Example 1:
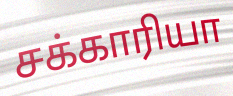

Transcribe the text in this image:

சக்காரியா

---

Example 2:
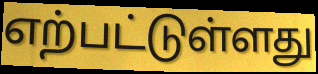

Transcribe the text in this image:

எற்பட்டுள்ளது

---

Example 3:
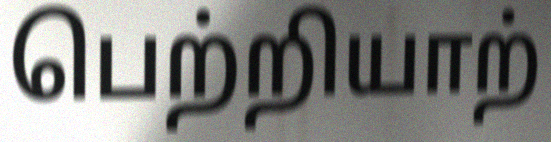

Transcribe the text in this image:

பெற்றியாற்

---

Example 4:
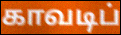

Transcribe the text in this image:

காவடிப்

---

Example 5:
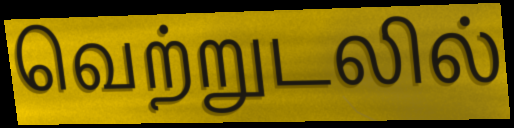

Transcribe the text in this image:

வெற்றுடலில்